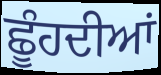
ਛੂੰਹਦੀਆਂ